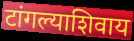
टांगल्याशिवाय